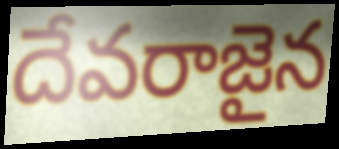
దేవరాజైన